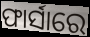
ଫାର୍ସାରେ